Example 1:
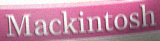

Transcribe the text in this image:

Mackintosh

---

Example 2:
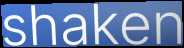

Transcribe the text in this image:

shaken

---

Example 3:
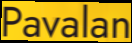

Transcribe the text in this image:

Pavalan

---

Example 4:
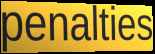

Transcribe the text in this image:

penalties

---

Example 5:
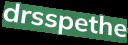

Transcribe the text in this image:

drsspethe